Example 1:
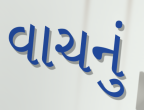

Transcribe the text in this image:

વાચનું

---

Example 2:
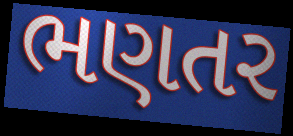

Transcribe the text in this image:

ભણતર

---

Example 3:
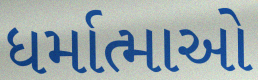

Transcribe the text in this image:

ધર્માત્માઓ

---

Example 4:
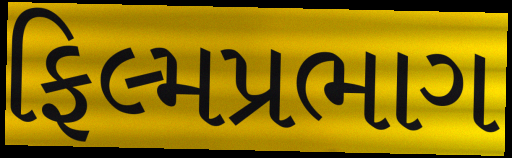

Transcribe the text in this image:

ફિલ્મપ્રભાગ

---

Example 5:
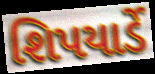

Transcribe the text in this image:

શિપયાર્ડે